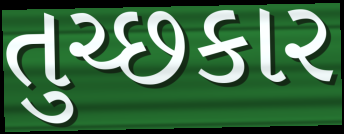
તુચ્છકાર